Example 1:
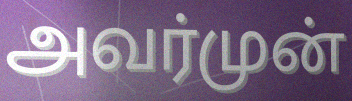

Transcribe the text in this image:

அவர்முன்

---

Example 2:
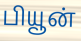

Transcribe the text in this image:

பியூன்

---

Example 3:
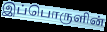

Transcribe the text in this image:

இப்பொருளின்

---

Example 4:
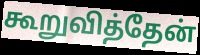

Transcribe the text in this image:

கூறுவித்தேன்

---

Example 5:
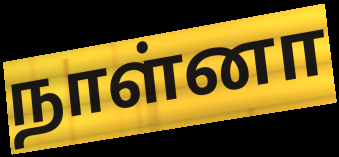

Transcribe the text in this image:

நாள்னா